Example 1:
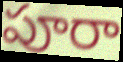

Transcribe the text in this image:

పూరా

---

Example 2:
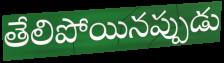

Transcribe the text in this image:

తేలిపోయినప్పుడు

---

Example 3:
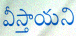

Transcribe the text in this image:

వీస్తాయని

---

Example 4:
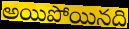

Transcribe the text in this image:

అయిపోయినది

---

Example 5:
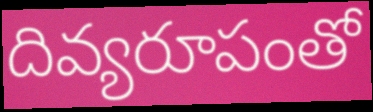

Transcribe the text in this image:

దివ్యరూపంతో